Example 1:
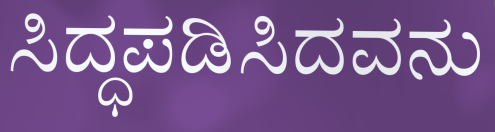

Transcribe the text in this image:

ಸಿದ್ಧಪಡಿಸಿದವನು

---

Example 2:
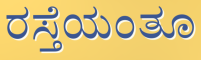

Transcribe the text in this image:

ರಸ್ತೆಯಂತೂ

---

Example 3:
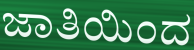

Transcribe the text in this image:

ಜಾತಿಯಿಂದ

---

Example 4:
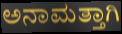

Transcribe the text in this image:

ಅನಾಮತ್ತಾಗಿ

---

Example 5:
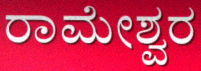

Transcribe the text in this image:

ರಾಮೇಶ್ವರ